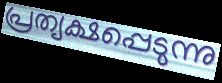
പ്രത്യക്ഷപ്പെടുന്നു